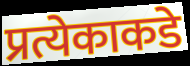
प्रत्येकाकडे